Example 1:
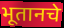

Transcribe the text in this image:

भूतानचे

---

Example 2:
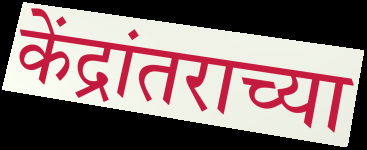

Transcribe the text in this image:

केंद्रांतराच्या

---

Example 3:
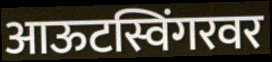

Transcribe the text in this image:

आऊटस्विंगरवर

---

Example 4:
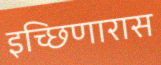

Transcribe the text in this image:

इच्छिणारास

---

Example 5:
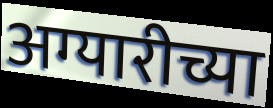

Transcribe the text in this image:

अग्यारीच्या